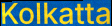
Kolkatta